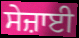
ਸੇਜ਼ਾਈ